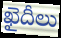
ఖైదీలు